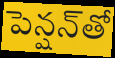
పెన్షన్‌తో